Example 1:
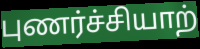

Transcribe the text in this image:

புணர்ச்சியாற்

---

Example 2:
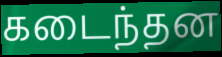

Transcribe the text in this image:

கடைந்தன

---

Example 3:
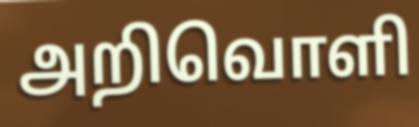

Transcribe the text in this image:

அறிவொளி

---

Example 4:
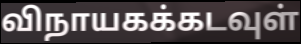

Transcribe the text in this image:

விநாயகக்கடவுள்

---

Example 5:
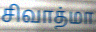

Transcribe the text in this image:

சிவாத்மா